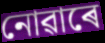
নোৱাৰে